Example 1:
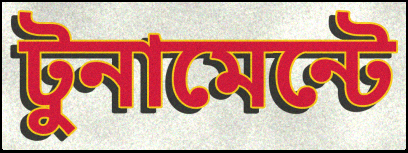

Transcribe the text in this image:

টুনামেন্টে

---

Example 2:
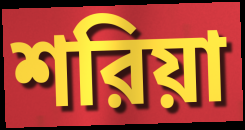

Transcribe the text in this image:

শরিয়া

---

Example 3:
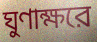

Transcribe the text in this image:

ঘুণাক্ষরে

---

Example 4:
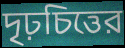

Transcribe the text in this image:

দৃঢ়চিত্তের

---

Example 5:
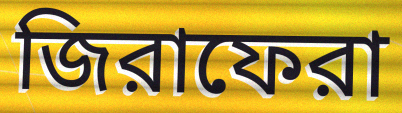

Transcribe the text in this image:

জিরাফেরা